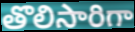
తొలిసారిగా